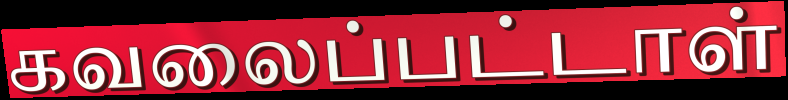
கவலைப்பட்டாள்